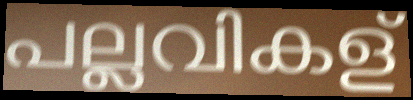
പല്ലവികള്